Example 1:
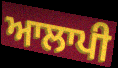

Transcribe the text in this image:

ਆਲਾਪੀ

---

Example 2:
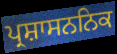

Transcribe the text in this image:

ਪ੍ਰਸ਼ਾਸਨਨਿਕ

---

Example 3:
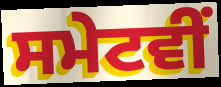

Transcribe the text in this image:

ਸਮੇਟਵੀਂ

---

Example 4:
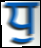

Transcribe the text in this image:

ਧੁ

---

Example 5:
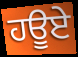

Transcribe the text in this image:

ਹਊਏ